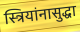
स्त्रियांनासुद्धा